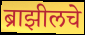
ब्राझीलचे